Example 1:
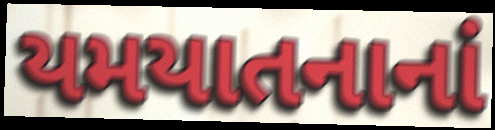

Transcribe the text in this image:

યમયાતનાનાં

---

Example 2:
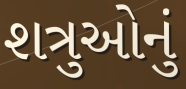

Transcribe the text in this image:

શત્રુઓનું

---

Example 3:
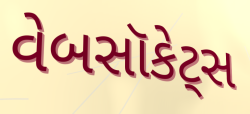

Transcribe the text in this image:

વેબસૉકેટ્સ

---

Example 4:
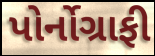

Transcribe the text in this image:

પોર્નોગ્રાફી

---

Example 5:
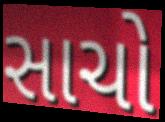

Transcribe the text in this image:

સાચો